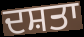
ਦਸ਼ਤਾ